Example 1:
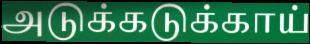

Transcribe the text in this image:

அடுக்கடுக்காய்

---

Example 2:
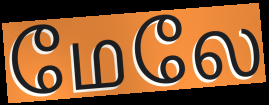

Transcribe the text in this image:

மேலே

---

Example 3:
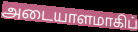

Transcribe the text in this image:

அடையாளமாகிப்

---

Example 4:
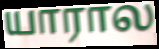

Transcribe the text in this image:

யாரால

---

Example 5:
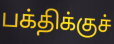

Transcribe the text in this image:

பக்திக்குச்